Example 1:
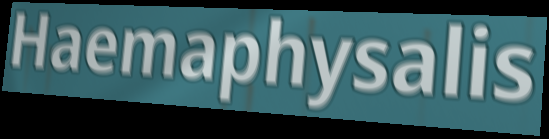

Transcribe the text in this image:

Haemaphysalis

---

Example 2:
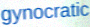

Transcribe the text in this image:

gynocratic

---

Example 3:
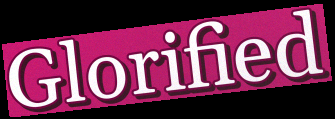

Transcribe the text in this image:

Glorified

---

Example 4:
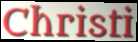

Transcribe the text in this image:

Christi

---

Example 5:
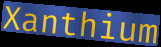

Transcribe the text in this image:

Xanthium